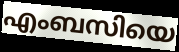
എംബസിയെ